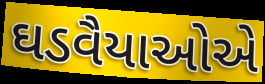
ઘડવૈયાઓએ